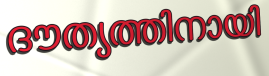
ദൗത്യത്തിനായി